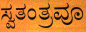
ಸ್ವತಂತ್ರವೂ